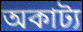
অকাট্য